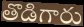
తొడిగారు